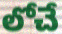
లోచే